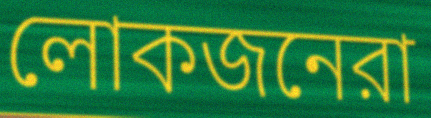
লোকজনেরা